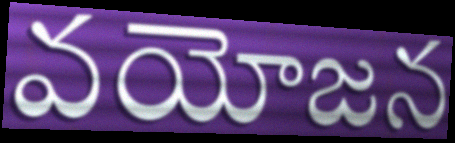
వయోజన